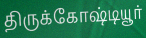
திருக்கோஷ்டியூர்